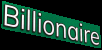
Billionaire